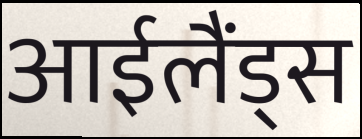
आईलैंड्स